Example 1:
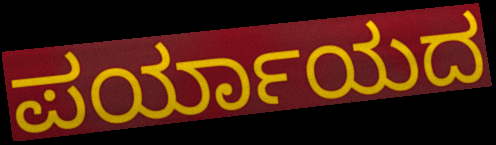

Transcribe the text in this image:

ಪರ್ಯಾಯದ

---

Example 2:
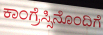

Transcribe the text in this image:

ಕಾಂಗ್ರೆಸ್ಸಿನೊಂದಿಗೆ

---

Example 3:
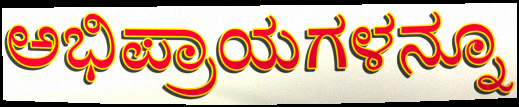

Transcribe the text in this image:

ಅಭಿಪ್ರಾಯಗಳನ್ನೂ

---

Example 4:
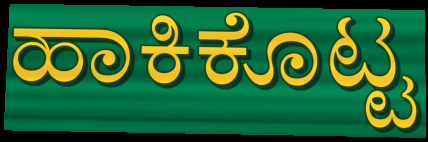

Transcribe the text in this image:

ಹಾಕಿಕೊಟ್ಟ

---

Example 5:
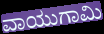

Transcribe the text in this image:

ವಾಯುಗಾಮಿ